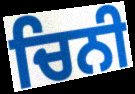
ਚਿਨੀ